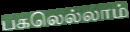
பகலெல்லாம்